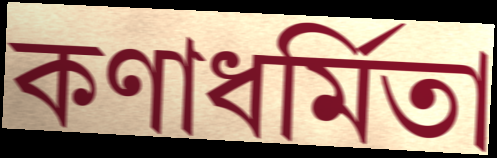
কণাধর্মিতা